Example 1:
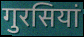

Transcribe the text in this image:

गुरसियां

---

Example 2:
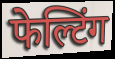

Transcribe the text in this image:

फेल्टिंग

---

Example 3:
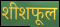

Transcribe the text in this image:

शीशफूल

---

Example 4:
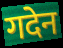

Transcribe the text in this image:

गदेन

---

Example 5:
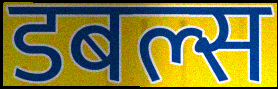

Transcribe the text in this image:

डबल्‍स